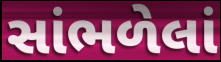
સાંભળેલાં